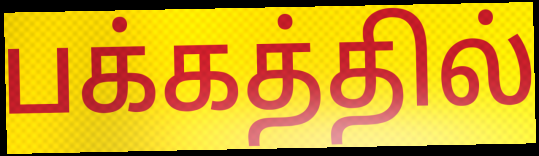
பக்கத்தில்